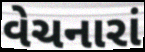
વેચનારાં